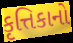
કૃત્તિકાનો